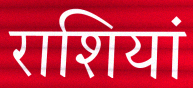
राशियां